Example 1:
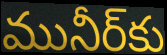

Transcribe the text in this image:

మునీర్‌కు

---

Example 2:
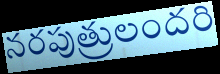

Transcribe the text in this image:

నరపుత్రులందరి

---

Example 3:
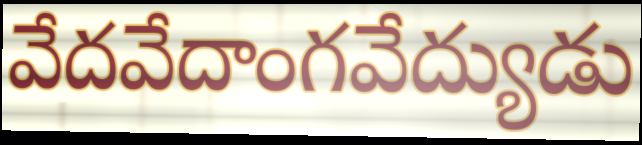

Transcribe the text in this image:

వేదవేదాంగవేద్యుడు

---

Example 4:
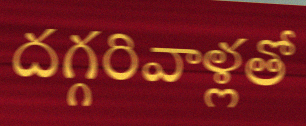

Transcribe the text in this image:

దగ్గరివాళ్లతో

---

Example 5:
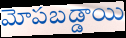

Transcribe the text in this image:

మోపబడ్డాయి